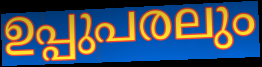
ഉപ്പുപരലും